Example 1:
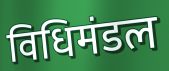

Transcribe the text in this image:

विधिमंडल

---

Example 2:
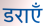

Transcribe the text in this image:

डराएँ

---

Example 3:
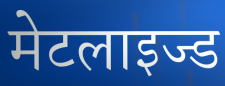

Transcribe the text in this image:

मेटलाइज्ड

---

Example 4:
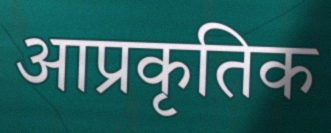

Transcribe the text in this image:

आप्रकृतिक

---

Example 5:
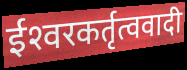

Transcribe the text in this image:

ईश्वरकर्तृत्ववादी